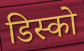
डिस्को